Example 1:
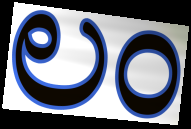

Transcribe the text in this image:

ಲಂ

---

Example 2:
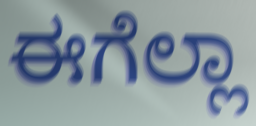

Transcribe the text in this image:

ಈಗೆಲ್ಲಾ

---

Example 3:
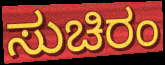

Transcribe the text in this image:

ಸುಚಿರಂ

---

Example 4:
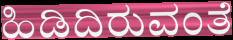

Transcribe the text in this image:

ಹಿಡಿದಿರುವಂತೆ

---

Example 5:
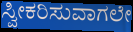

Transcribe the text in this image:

ಸ್ವೀಕರಿಸುವಾಗಲೇ